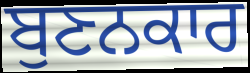
ਬੁਣਨਕਾਰ